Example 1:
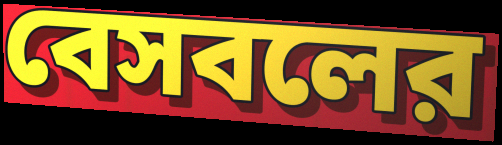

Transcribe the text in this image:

বেসবলের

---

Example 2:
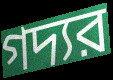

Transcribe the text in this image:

গদ্যর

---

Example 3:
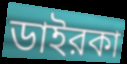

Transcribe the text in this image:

ডাইরকা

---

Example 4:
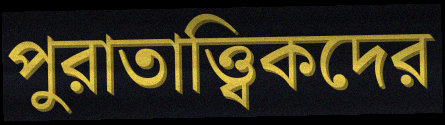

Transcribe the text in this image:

পুরাতাত্ত্বিকদের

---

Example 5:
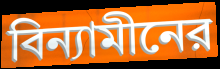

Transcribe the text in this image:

বিন্যামীনের